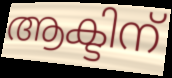
ആക്ടിന്